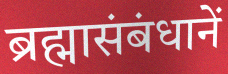
ब्रह्मासंबंधानें